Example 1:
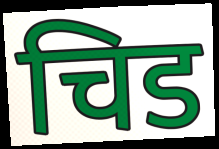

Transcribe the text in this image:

चिड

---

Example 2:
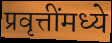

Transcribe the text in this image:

प्रवृत्तींमध्ये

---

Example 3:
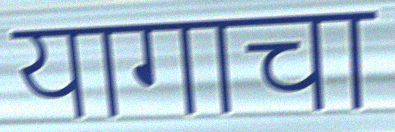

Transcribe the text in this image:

यागाचा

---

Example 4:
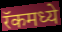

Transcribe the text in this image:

रॅकमध्ये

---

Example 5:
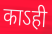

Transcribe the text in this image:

काऽही